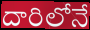
దారిలోనే